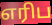
எரிப